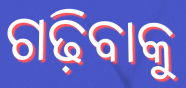
ଗଢ଼ିବାକୁ